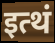
इत्थं